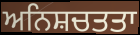
ਅਨਿਸ਼ਚਤਤਾ